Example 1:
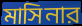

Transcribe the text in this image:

মাসিনার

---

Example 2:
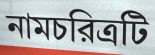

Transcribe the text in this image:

নামচরিত্রটি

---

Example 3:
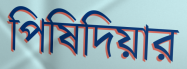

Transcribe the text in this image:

পিষিদিয়ার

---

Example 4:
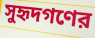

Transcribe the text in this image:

সুহৃদগণের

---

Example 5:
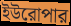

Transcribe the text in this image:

ইউরোপার